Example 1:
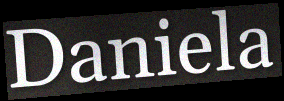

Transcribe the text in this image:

Daniela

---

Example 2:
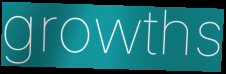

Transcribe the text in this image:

growths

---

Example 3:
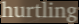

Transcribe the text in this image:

hurtling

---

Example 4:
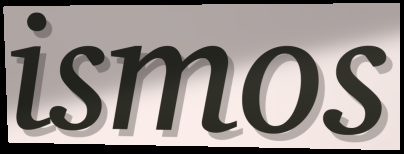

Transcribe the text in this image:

ismos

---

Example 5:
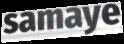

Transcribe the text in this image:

samaye